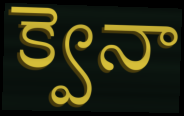
క్వెనా